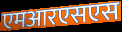
एमआरएसएस